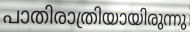
പാതിരാത്രിയായിരുന്നു